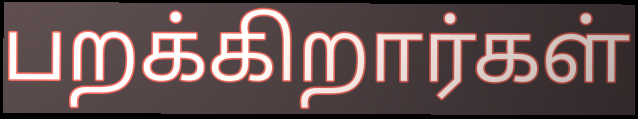
பறக்கிறார்கள்